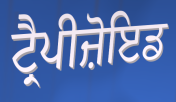
ਟ੍ਰੈਪੀਜ਼ੋਇਡ